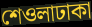
শেওলাঢাকা